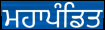
ਮਹਾਪੰਡਿਤ